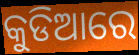
କୁଡିଆରେ